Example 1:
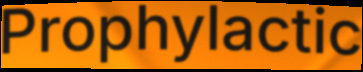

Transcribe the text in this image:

Prophylactic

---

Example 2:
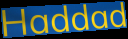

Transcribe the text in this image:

Haddad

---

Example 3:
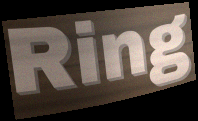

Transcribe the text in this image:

Ring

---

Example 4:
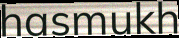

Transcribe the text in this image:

hasmukh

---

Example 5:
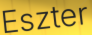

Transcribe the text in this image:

Eszter